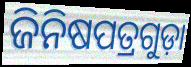
ଜିନିଷପତ୍ରଗୁଡ଼ା